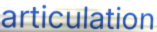
articulation